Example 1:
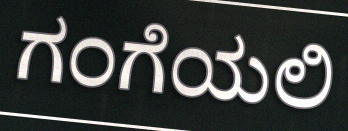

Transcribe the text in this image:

ಗಂಗೆಯಲಿ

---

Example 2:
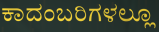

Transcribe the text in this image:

ಕಾದಂಬರಿಗಳಲ್ಲೂ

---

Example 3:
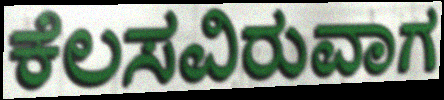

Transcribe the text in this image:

ಕೆಲಸವಿರುವಾಗ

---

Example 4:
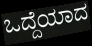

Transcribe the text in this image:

ಒದ್ದೆಯಾದ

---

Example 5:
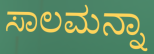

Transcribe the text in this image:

ಸಾಲಮನ್ನಾ